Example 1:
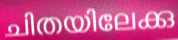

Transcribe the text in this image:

ചിതയിലേക്കു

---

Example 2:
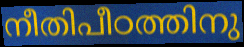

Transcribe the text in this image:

നീതിപീഠത്തിനു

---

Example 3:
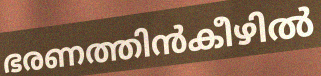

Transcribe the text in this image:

ഭരണത്തിൻകീഴിൽ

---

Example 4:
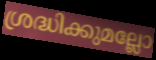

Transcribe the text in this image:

ശ്രദ്ധിക്കുമല്ലോ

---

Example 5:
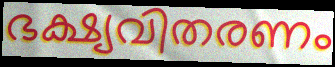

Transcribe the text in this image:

ഭക്ഷ്യവിതരണം